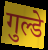
गुल्डे